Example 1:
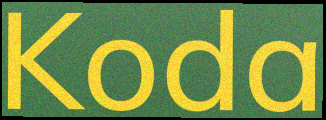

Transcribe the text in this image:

Koda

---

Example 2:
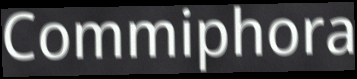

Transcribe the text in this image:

Commiphora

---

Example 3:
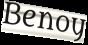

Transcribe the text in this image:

Benoy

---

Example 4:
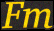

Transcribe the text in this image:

Fm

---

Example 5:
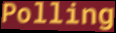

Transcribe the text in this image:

Polling